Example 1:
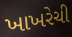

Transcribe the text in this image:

ખાખરેચી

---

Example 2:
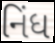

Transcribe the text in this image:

નિંધ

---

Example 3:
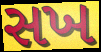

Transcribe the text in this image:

સખ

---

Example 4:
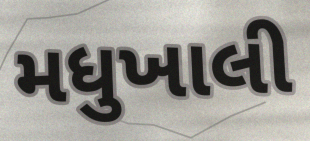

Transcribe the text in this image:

મધુખાલી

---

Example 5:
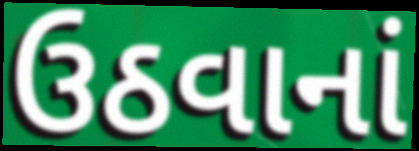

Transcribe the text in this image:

ઉઠવાનાં